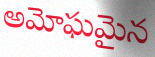
అమోఘమైన